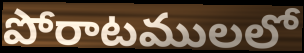
పోరాటములలో